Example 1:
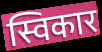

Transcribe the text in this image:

स्विकार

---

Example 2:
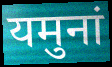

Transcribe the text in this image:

यमुनां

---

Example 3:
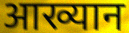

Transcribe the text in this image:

आख्यान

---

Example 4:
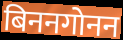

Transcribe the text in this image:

बिननगोनन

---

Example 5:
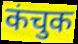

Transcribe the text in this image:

कंचुक